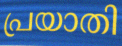
പ്രയാതി